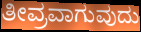
ತೀವ್ರವಾಗುವುದು